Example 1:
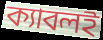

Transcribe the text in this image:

ক্যাবলই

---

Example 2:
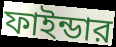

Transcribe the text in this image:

ফাইন্ডার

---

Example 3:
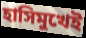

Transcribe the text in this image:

হাসিমুখেই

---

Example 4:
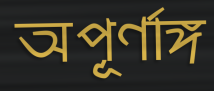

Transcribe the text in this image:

অপূর্ণাঙ্গ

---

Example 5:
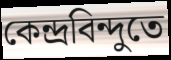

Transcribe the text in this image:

কেন্দ্রবিন্দুতে